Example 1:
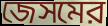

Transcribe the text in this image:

জেসমের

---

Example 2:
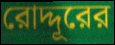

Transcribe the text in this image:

রোদ্দূরের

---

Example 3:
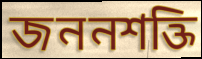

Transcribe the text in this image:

জননশক্তি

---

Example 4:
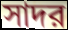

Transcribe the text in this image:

সাদর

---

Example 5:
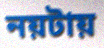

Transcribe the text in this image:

নয়টায়